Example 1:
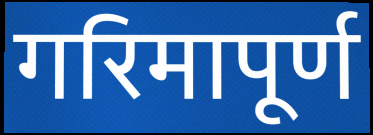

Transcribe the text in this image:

गरिमापूर्ण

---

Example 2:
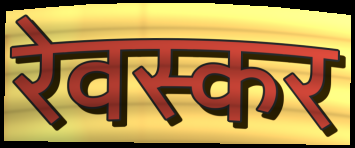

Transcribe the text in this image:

रेवस्कर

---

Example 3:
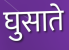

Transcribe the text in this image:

घुसाते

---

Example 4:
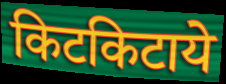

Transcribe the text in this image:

किटकिटाये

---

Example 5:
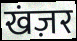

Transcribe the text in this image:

खंज़र